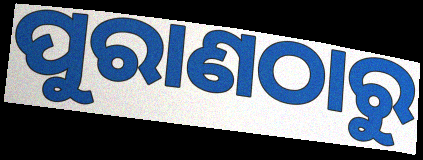
ପୁରାଣଠାରୁ